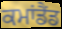
ਕਮਾਂਡੈਂਡ